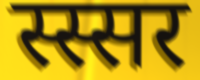
स्स्सर